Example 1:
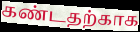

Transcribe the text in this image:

கண்டதற்காக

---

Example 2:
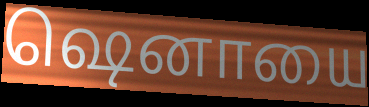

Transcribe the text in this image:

ஷெனாயை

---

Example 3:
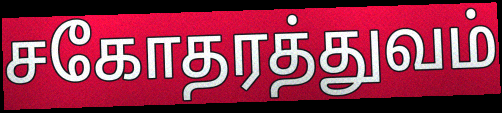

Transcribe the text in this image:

சகோதரத்துவம்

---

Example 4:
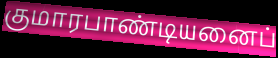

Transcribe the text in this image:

குமாரபாண்டியனைப்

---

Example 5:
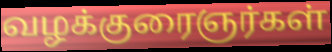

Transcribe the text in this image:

வழக்குரைஞர்கள்